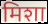
मिशा